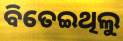
ବିତେଇଥିଲୁ